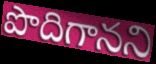
పొదిగానని